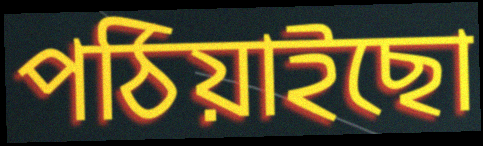
পঠিয়াইছো